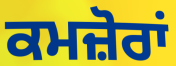
ਕਮਜ਼ੋਰਾਂ